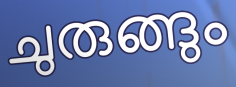
ചുരുങ്ങും